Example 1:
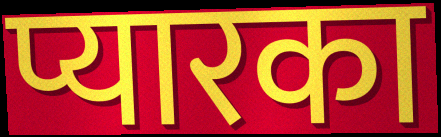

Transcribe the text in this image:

प्यारका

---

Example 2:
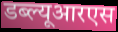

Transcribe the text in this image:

डब्ल्यूआरएस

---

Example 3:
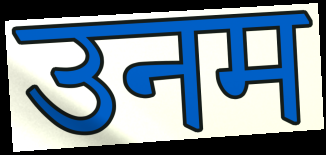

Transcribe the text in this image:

उनम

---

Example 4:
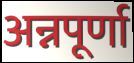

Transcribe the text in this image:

अन्नपूर्णा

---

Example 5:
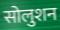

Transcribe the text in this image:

सोलुशन